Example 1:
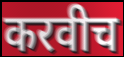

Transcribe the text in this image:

करवीच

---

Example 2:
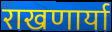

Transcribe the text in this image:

राखणार्या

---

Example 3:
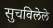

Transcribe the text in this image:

सुचविलेले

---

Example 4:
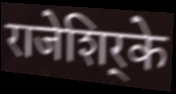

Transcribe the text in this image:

राजेशिर्के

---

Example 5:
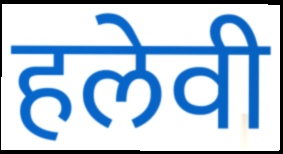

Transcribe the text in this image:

हलेवी